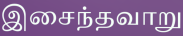
இசைந்தவாறு